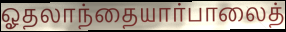
ஓதலாந்தையார்பாலைத்